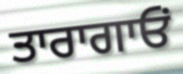
ਤਾਰਾਗਾਓਂ